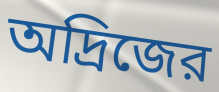
অদ্রিজের